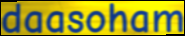
daasoham